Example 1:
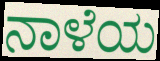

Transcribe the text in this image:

ನಾಳೆಯ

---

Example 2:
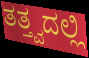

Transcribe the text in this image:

ತತ್ತ್ವದಲ್ಲಿ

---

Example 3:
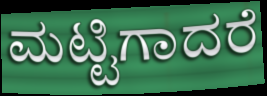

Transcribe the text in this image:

ಮಟ್ಟಿಗಾದರೆ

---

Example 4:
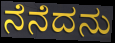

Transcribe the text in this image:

ನೆನೆದನು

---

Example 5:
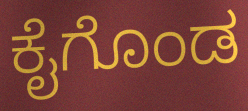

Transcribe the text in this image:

ಕೈಗೊಂಡ